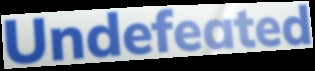
Undefeated